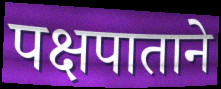
पक्षपाताने